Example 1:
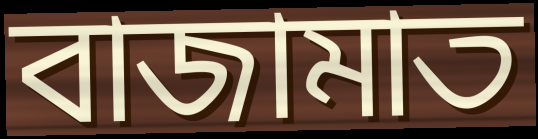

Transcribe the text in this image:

বাজামাত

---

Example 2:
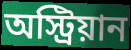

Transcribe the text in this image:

অস্ট্রিয়ান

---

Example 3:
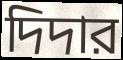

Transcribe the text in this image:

দিদার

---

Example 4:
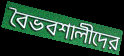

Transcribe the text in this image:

বৈভবশালীদের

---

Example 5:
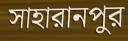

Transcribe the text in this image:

সাহারানপুর